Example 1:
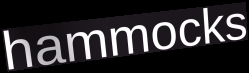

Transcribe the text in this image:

hammocks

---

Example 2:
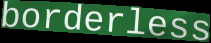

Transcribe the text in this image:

borderless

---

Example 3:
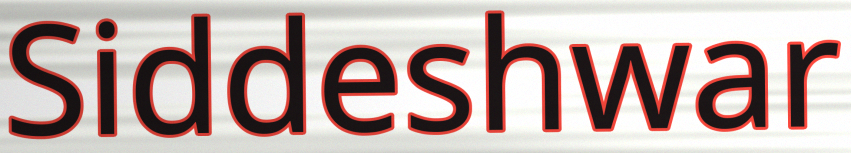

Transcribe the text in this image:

Siddeshwar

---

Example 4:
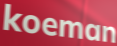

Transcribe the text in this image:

koeman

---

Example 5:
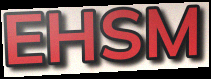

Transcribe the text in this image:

EHSM